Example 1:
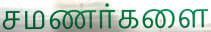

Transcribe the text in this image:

சமணர்களை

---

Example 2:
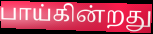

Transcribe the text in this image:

பாய்கின்றது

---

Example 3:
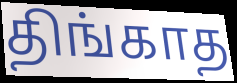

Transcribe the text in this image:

திங்காத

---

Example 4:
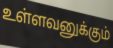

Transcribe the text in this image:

உள்ளவனுக்கும்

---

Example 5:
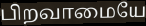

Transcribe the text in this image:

பிறவாமையே